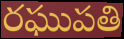
రఘుపతి